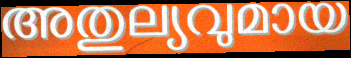
അതുല്യവുമായ